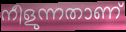
നീളുന്നതാണ്